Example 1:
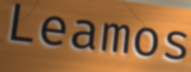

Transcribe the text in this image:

Leamos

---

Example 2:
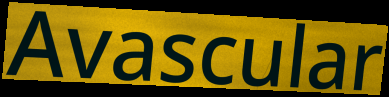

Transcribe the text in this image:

Avascular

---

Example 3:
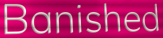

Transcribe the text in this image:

Banished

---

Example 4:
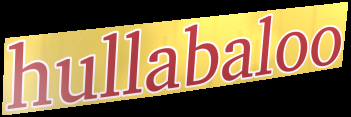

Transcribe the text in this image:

hullabaloo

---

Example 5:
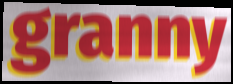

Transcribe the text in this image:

granny